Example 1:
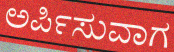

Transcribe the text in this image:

ಅರ್ಪಿಸುವಾಗ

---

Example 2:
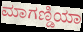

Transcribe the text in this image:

ಮಾಗಣ್ಡಿಯಾ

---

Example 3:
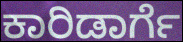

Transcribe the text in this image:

ಕಾರಿಡಾರ್ಗೆ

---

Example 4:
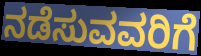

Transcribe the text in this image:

ನಡೆಸುವವರಿಗೆ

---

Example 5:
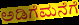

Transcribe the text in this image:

ಅಡಿಗೆಮನೆಗೆ